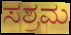
ಸಶ್ರಮ